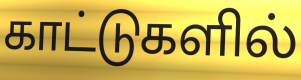
காட்டுகளில்